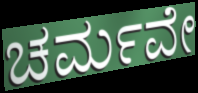
ಚರ್ಮವೇ